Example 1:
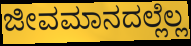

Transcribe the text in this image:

ಜೀವಮಾನದಲ್ಲೆಲ್ಲ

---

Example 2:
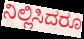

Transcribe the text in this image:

ನಿಲ್ಲಿಸಿದರೂ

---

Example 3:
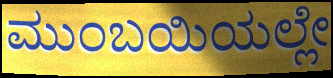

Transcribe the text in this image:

ಮುಂಬಯಿಯಲ್ಲೇ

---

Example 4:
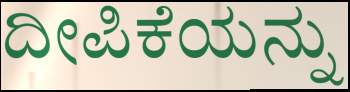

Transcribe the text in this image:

ದೀಪಿಕೆಯನ್ನು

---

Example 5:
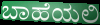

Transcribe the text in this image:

ಬಾಹೆಯಲಿ